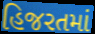
હિજરતમાં